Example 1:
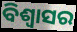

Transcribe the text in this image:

ବିଶ୍ୱାସର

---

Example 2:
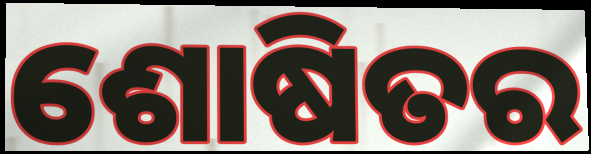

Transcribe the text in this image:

ଶୋଷିତର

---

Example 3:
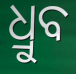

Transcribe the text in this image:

ଧ୍ରୁବ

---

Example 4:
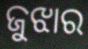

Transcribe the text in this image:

ଜୁଝାର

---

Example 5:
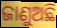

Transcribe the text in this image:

ଜାଣୁଅଛି